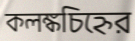
কলঙ্কচিহ্নের